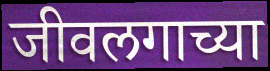
जीवलगाच्या